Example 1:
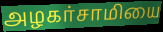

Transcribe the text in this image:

அழகர்சாமியை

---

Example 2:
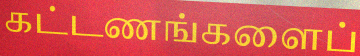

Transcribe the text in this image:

கட்டணங்களைப்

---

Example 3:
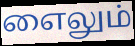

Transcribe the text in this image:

எைலும்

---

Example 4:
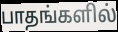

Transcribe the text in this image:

பாதங்களில்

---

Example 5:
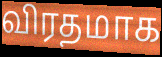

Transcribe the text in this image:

விரதமாக